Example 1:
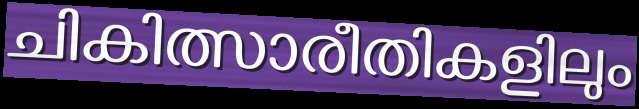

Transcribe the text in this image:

ചികിത്സാരീതികളിലും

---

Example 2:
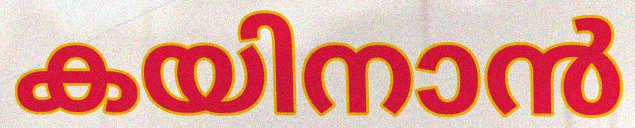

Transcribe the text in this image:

കയിനാൻ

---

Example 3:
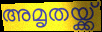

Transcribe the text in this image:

അമൃതയ്ക്ക്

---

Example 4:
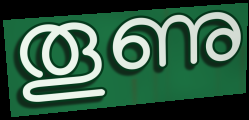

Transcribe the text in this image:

തൂണു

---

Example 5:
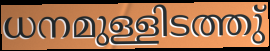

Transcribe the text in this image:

ധനമുള്ളിടത്തു്